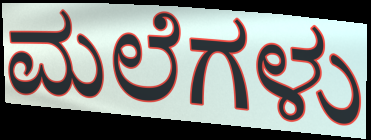
ಮಲೆಗಳು